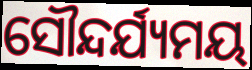
ସୌନ୍ଦର୍ଯ୍ୟମୟ